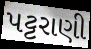
પટ્ટરાણી